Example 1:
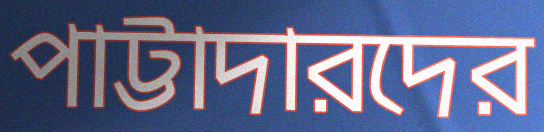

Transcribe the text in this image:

পাট্টাদারদের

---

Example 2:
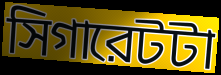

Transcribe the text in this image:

সিগারেটটা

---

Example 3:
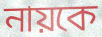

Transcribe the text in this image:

নায়কে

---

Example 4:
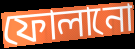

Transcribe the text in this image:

ফোলানো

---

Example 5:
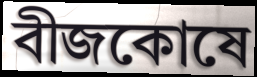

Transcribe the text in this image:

বীজকোষে